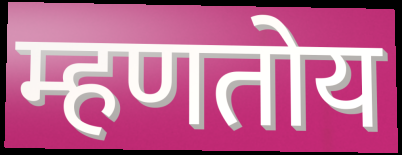
म्हणतोय